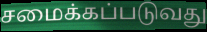
சமைக்கப்படுவது